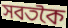
সবতকৈ